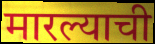
मारल्याची